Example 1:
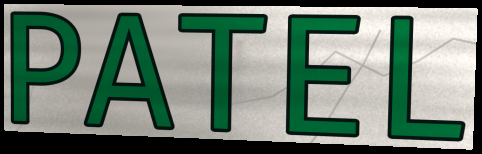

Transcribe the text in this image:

PATEL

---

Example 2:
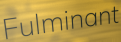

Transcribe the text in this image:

Fulminant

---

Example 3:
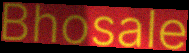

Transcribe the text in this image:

Bhosale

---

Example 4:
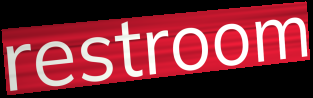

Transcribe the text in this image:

restroom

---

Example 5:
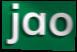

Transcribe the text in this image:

jao